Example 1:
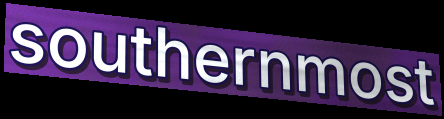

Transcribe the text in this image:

southernmost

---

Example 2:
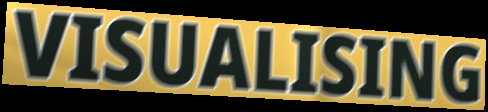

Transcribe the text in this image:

VISUALISING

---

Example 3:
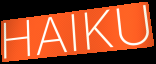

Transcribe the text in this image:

HAIKU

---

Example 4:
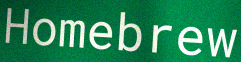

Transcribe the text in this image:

Homebrew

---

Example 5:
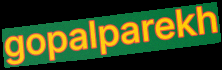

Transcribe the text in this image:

gopalparekh